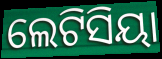
ଲେଟିସିୟା